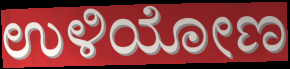
ಉಳಿಯೋಣ